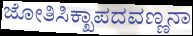
ಜೋತಿಸಿಕ್ಖಾಪದವಣ್ಣನಾ